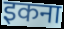
इकना